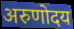
अरुणोदय